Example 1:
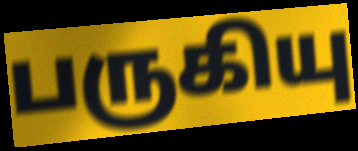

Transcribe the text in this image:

பருகியு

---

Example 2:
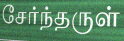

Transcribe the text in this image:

சேர்ந்தருள்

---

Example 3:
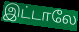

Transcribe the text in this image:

இட்டாலே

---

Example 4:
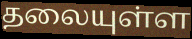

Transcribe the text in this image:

தலையுள்ள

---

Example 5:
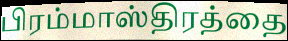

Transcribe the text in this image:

பிரம்மாஸ்திரத்தை